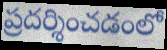
ప్రదర్శించడంలో